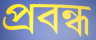
প্রবন্ধ